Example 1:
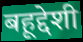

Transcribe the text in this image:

बहूद्देशी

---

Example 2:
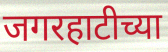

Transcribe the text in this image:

जगरहाटीच्या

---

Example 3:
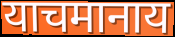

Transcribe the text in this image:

याचमानाय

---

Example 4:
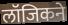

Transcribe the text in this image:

लॉजिकने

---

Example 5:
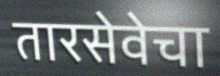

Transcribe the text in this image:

तारसेवेचा